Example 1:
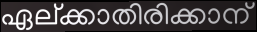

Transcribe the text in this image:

ഏല്ക്കാതിരിക്കാന്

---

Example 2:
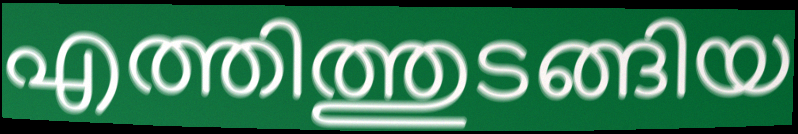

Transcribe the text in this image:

എത്തിത്തുടങ്ങിയ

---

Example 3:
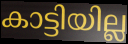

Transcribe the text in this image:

കാട്ടിയില്ല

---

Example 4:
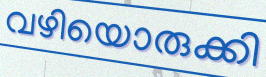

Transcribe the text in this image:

വഴിയൊരുക്കി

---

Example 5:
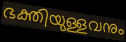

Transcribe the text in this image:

ഭക്തിയുള്ളവനും